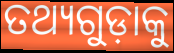
ତଥ୍ୟଗୁଡ଼ାକୁ